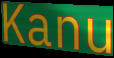
Kanu